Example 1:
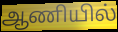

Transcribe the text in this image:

ஆணியில்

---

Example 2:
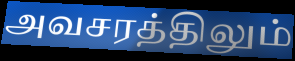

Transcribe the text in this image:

அவசரத்திலும்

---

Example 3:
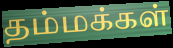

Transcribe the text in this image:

தம்மக்கள்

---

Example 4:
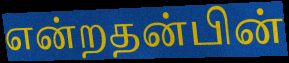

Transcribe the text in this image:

என்றதன்பின்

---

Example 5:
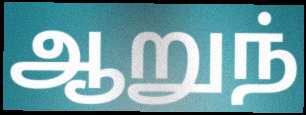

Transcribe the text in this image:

ஆறுந்